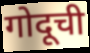
गोदूची